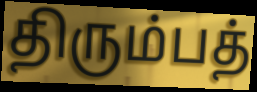
திரும்பத்